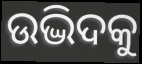
ଉଦ୍ଭିଦକୁ